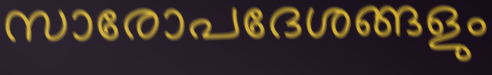
സാരോപദേശങ്ങളും